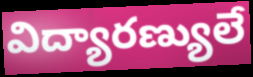
విద్యారణ్యులే